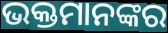
ଭକ୍ତମାନଙ୍କର